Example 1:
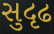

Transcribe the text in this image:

સુદૃઢ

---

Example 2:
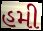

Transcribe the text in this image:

હમી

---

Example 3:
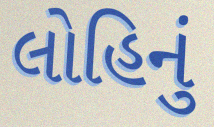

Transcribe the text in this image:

લોહિનું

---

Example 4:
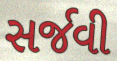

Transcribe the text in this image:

સર્જવી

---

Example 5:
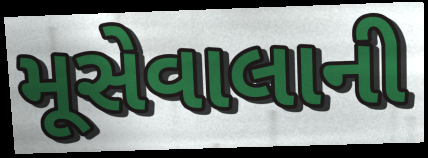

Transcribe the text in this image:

મૂસેવાલાની